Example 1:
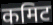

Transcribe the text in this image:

कमिट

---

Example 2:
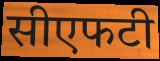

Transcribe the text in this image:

सीएफटी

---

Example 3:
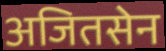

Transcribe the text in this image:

अजितसेन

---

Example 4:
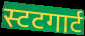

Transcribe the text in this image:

स्टटगार्ट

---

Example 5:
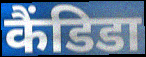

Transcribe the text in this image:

कैंडिडा